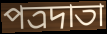
পত্রদাতা